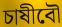
চাষীবৌ